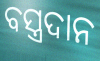
ବସ୍ତ୍ରଦାନ